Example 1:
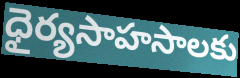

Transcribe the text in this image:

ధైర్యసాహసాలకు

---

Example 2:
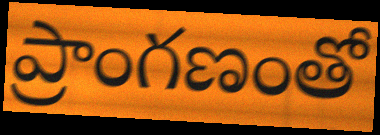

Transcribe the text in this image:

ప్రాంగణంతో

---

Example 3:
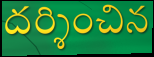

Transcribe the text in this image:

దర్శించిన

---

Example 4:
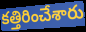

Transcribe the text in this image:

కత్తిరించేశారు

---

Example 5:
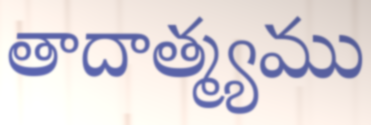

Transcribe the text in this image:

తాదాత్మ్యము